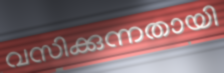
വസിക്കുന്നതായി